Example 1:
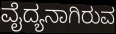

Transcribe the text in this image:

ವೈದ್ಯನಾಗಿರುವ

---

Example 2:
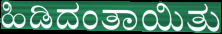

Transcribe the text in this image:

ಹಿಡಿದಂತಾಯಿತು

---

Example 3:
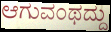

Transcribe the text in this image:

ಆಗುವಂಥದ್ದು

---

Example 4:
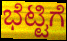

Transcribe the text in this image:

ಭೆಟ್ಟಿಗೆ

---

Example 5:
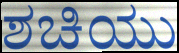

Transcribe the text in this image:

ಶಚಿಯು